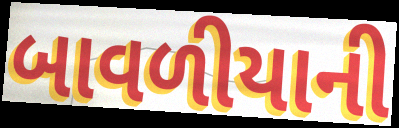
બાવળીયાની